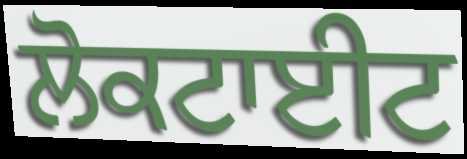
ਲੋਕਟਾਈਟ